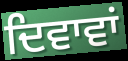
ਦਿਵਾਵਾਂ